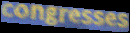
congresses